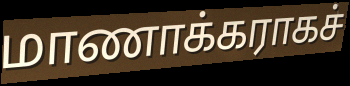
மாணாக்கராகச்